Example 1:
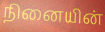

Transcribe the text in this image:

நினையின்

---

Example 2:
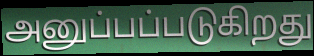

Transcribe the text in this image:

அனுப்பப்படுகிறது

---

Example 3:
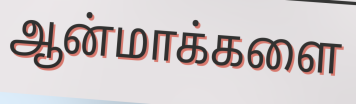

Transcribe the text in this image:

ஆன்மாக்களை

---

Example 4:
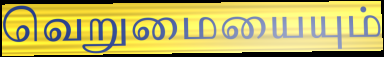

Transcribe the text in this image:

வெறுமையையும்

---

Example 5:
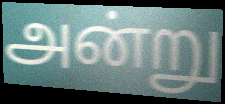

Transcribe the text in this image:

அன்று